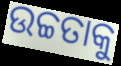
ଉଚ୍ଚତାକୁ